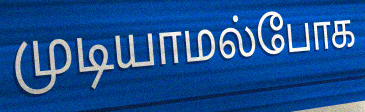
முடியாமல்போக